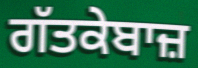
ਗੱਤਕੇਬਾਜ਼